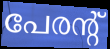
പേരന്റ്